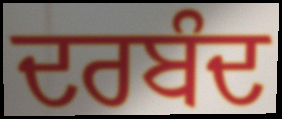
ਦਰਬੰਦ